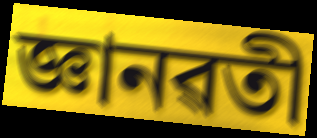
জ্ঞানৱতী